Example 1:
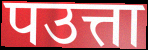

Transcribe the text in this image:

पउत्ता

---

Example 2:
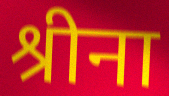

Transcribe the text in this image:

श्रीना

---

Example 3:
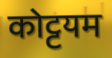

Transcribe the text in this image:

कोट्टयम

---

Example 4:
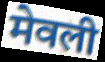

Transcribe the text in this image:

मेवली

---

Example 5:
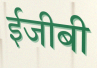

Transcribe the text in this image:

ईजीबी